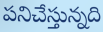
పనిచేస్తున్నది